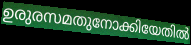
ഉരുരസമതുനോക്കിയേതിൽ